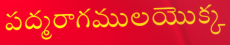
పద్మరాగములయొక్క